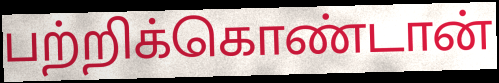
பற்றிக்கொண்டான்